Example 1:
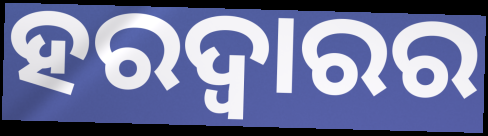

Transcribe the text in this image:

ହରଦ୍ୱାରର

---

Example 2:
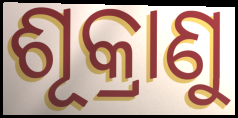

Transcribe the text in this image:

ଶୂକ୍ରାଣୁ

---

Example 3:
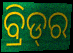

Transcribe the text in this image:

ବ୍ରିଡ୍‌ର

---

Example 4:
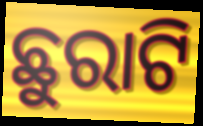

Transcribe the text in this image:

ଛୁରାଟି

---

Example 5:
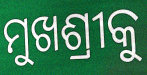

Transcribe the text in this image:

ମୁଖଶ୍ରୀକୁ